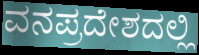
ವನಪ್ರದೇಶದಲ್ಲಿ